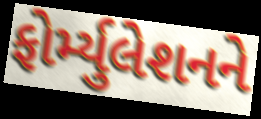
ફોર્મ્યુલેશનને